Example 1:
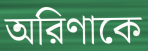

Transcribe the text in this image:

অরিণাকে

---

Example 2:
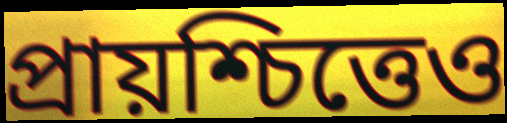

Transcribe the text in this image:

প্রায়শ্চিত্তেও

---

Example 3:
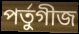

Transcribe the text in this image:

পর্তুগীজ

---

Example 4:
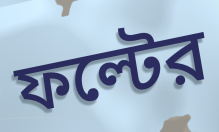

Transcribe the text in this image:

ফল্টের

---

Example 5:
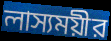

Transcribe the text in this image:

লাস্যময়ীর